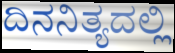
ದಿನನಿತ್ಯದಲ್ಲಿ